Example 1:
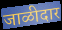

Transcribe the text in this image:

जाळीदार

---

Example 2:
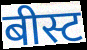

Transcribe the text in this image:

बीस्ट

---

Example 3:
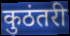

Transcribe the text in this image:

कुठंतरी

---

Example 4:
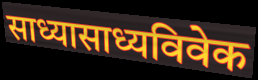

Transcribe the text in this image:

साध्यासाध्यविवेक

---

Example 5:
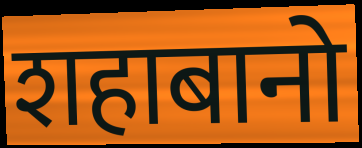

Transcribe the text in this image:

शहाबानो